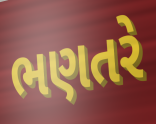
ભણતરે